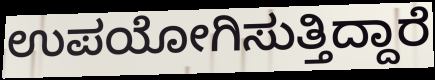
ಉಪಯೋಗಿಸುತ್ತಿದ್ದಾರೆ